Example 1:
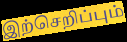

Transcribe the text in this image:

இற்செறிப்பும்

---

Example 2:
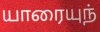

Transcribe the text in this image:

யாரையுந்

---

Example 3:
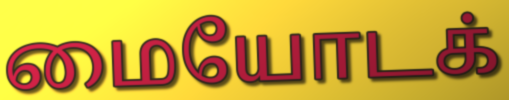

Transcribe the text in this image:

மையோடக்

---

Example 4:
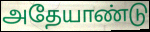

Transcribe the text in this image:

அதேயாண்டு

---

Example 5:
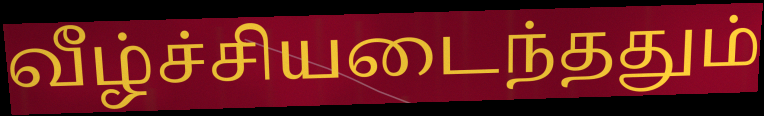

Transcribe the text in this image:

வீழ்ச்சியடைந்ததும்